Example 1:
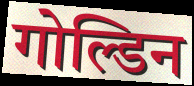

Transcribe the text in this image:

गोल्डिन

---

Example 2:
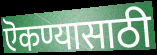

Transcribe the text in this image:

ऎकण्यासाठी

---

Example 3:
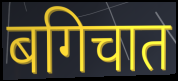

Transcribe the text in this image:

बगिचात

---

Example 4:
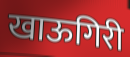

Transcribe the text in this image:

खाऊगिरी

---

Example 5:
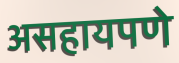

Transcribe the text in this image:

असहायपणे